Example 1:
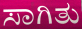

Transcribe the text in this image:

ಸಾಗಿತು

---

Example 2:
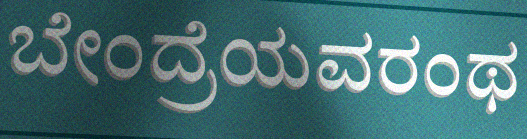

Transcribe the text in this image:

ಬೇಂದ್ರೆಯವರಂಥ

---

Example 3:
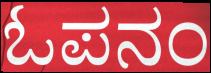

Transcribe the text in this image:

ಓಪನಂ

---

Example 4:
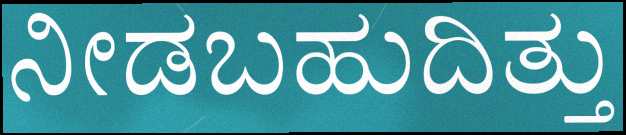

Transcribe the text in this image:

ನೀಡಬಹುದಿತ್ತು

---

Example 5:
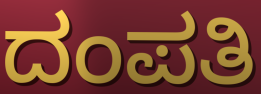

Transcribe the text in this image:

ದಂಪತಿ